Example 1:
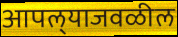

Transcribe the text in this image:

आपल्याजवळील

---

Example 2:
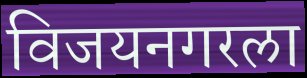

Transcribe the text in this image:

विजयनगरला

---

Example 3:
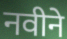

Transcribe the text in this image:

नवीने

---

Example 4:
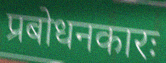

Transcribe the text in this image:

प्रबोधनकारः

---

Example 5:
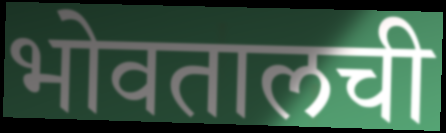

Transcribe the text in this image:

भोवतालची